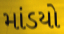
માંડયો